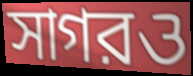
সাগরও